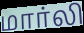
மார்லி